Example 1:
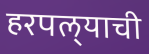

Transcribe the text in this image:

हरपल्याची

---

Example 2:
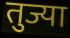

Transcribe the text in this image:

तुज्या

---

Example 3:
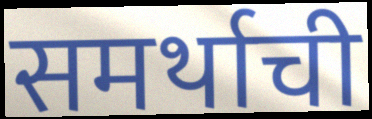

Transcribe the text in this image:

समर्थाची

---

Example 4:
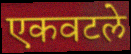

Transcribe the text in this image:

एकवटले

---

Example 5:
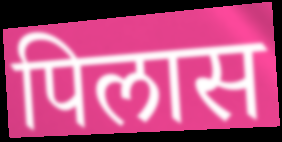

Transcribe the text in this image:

पिलास